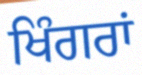
ਖਿੰਗਰਾਂ